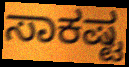
ಸಾಕಷ್ಟ